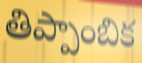
తిప్పాంబిక